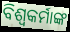
ବିଶ୍ୱକର୍ମାଙ୍କ